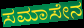
ಸಮಾಸೇನ